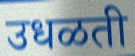
उधळती